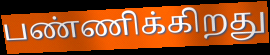
பண்ணிக்கிறது